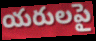
యరులపై